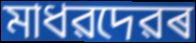
মাধৱদেৱৰ